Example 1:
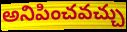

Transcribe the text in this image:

అనిపించవచ్చు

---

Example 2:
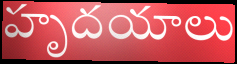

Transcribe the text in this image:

హృదయాలు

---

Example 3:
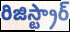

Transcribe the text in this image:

రిజిస్ట్రార్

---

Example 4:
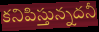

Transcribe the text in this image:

కనిపిస్తున్నదనీ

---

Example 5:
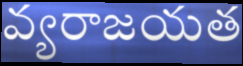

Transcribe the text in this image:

వ్యరాజయత